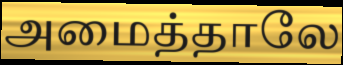
அமைத்தாலே